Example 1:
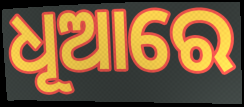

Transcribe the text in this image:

ଧୂଆରେ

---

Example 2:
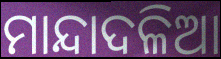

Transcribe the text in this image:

ମାନ୍ଦାଦଳିଆ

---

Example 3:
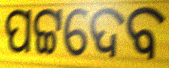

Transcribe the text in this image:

ପଟ୍ଟଦେବ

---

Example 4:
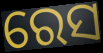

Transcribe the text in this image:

ରେସ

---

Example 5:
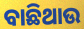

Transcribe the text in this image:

ବାଛିଥାଉ